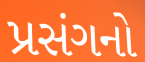
પ્રસંગનો